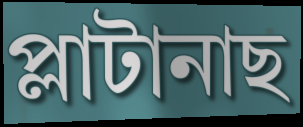
প্লাটানাছ